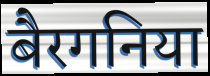
बैरगनिया